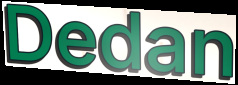
Dedan